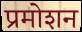
प्रमोशन